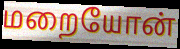
மறையோன்